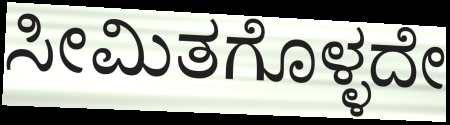
ಸೀಮಿತಗೊಳ್ಳದೇ